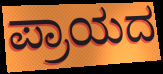
ಪ್ರಾಯದ